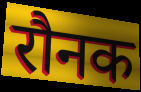
रौनक